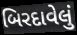
બિરદાવેલું